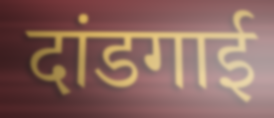
दांडगाई